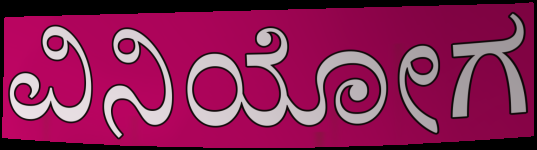
ವಿನಿಯೋಗ